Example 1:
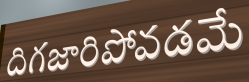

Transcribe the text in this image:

దిగజారిపోవడమే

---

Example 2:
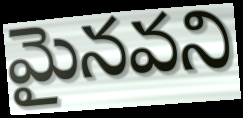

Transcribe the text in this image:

మైనవని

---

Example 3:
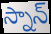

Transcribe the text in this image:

స్నాన్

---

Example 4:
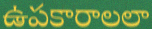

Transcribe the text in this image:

ఉపకారాలలా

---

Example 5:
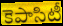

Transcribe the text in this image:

కెపాసిటీ